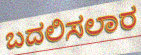
ಬದಲಿಸಲಾರ